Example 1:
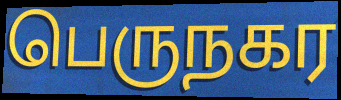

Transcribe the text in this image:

பெருநகர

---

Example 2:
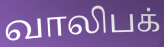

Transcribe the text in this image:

வாலிபக்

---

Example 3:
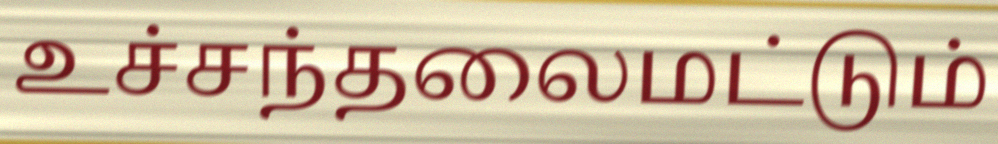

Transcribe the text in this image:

உச்சந்தலைமட்டும்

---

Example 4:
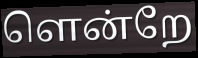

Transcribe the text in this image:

ளென்றே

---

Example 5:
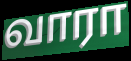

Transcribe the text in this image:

வாரா